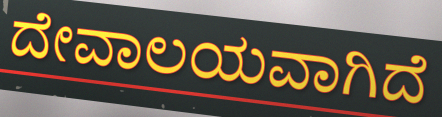
ದೇವಾಲಯವಾಗಿದೆ